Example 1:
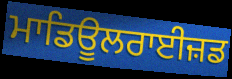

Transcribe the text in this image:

ਮਾਡਿਊਲਰਾਈਜ਼ਡ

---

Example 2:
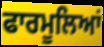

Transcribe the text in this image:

ਫਾਰਮੂਲਿਆਂ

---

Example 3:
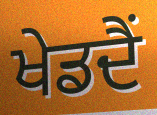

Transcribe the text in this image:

ਖੇਡਦੈਂ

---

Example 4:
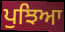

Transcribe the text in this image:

ਪੁਝਿਆ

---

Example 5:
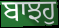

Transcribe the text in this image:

ਬਾਝਹੁ